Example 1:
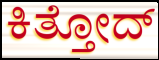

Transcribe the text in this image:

ಕಿತ್ತೋದ್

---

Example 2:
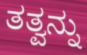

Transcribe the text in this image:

ತತ್ವನ್ನು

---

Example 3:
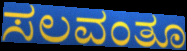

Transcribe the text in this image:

ಸಲವಂತೂ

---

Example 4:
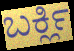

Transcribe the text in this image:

ಬರ್ಕ್ಲಿ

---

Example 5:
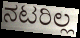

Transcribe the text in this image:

ನಟರಿಲ್ಲ